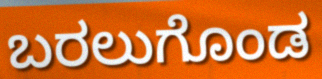
ಬರಲುಗೊಂಡ